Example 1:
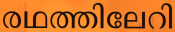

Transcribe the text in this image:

രഥത്തിലേറി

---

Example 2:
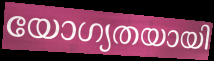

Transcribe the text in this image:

യോഗ്യതയായി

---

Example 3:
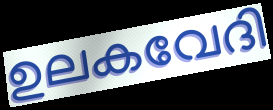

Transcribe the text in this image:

ഉലകവേദി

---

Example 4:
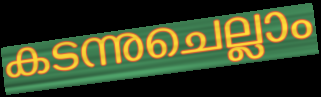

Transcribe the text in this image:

കടന്നുചെല്ലാം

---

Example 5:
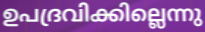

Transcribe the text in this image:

ഉപദ്രവിക്കില്ലെന്നു